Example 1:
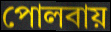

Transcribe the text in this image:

পোলবায়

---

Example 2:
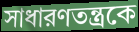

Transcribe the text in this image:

সাধারণতন্ত্রকে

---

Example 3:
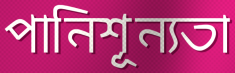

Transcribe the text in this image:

পানিশূন্যতা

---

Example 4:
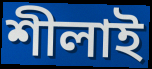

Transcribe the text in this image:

শীলাই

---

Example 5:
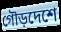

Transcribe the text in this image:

গৌড়দেশে